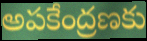
అపకేంద్రణకు